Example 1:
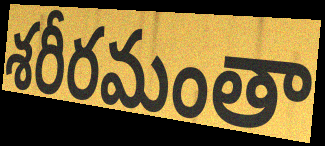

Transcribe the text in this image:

శరీరమంతా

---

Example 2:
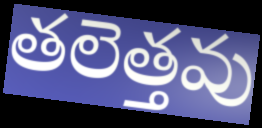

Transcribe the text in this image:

తలెత్తవు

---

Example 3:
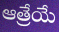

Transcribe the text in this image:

ఆత్రేయే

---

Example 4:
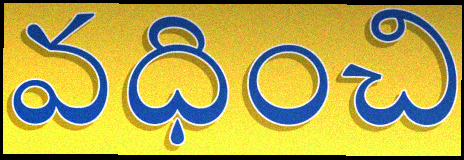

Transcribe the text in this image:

వధించి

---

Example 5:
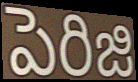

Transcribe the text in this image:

పెరిజి